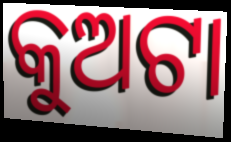
କୁଅଟା